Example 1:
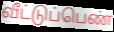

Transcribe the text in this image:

வீட்டுப்பெண்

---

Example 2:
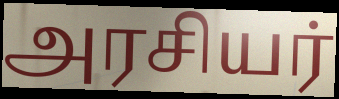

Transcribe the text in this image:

அரசியர்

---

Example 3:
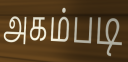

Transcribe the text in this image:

அகம்படி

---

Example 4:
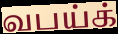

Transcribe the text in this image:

வபய்க்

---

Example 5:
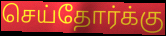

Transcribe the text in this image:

செய்தோர்க்கு